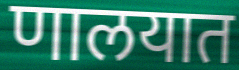
णालयात